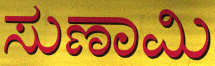
ಸುಣಾಮಿ